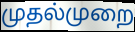
முதல்முறை